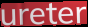
ureter